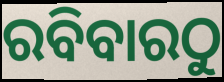
ରବିବାରଠୁ